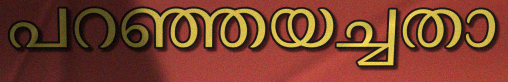
പറഞ്ഞയച്ചതാ